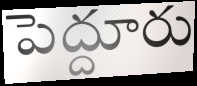
పెద్దూరు